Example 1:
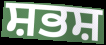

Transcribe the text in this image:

ਸ਼ਭਸ਼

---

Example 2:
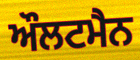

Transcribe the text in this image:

ਔਲਟਮੈਨ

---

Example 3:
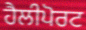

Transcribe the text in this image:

ਹੈਲੀਪੋਰਟ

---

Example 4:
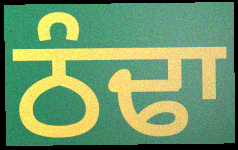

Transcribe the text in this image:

ਠੰਢਾ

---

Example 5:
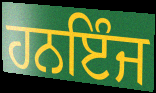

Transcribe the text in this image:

ਹਨਇੰਜ